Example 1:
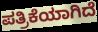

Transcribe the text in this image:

ಪತ್ರಿಕೆಯಾಗಿದೆ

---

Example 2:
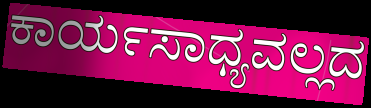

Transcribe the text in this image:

ಕಾರ್ಯಸಾಧ್ಯವಲ್ಲದ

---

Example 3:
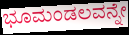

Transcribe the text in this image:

ಭೂಮಂಡಲವನ್ನೇ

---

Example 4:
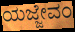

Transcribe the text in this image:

ಯಜ್ಜೇವಂ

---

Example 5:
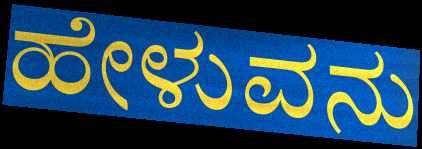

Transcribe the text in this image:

ಹೇಳುವನು